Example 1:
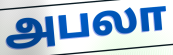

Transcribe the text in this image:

அபலா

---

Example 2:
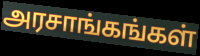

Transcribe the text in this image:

அரசாங்கங்கள்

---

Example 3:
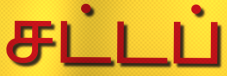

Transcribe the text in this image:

சட்டப்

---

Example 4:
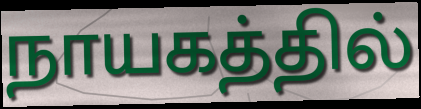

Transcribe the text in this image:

நாயகத்தில்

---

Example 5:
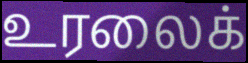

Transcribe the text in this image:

உரலைக்